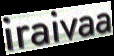
iraivaa